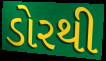
ડોરથી